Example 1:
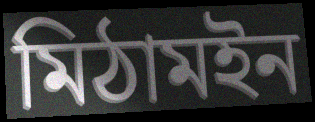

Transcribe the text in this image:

মিঠামইন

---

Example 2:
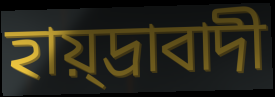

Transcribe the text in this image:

হায়্দ্রাবাদী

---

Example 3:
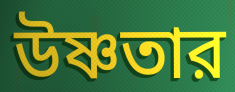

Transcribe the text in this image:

উষ্ণতার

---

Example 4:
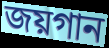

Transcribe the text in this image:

জয়গান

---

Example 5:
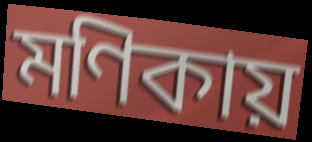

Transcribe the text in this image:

মণিকায়